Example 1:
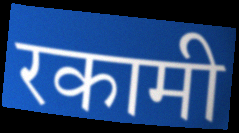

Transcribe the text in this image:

रकामी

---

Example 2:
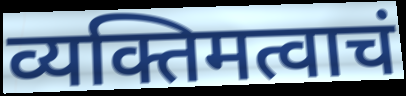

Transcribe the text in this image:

व्यक्तिमत्वाचं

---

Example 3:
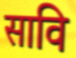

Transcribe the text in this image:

सावि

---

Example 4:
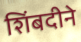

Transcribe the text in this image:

शिंबदीने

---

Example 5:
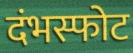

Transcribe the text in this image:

दंभस्फोट